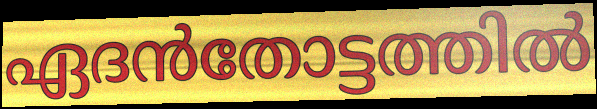
ഏദൻതോട്ടത്തിൽ